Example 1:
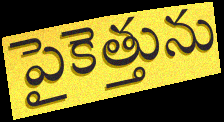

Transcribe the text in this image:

పైకెత్తును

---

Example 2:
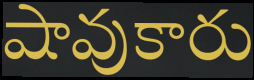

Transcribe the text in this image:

షావుకారు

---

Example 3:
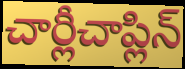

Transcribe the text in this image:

చార్లీచాప్లిన్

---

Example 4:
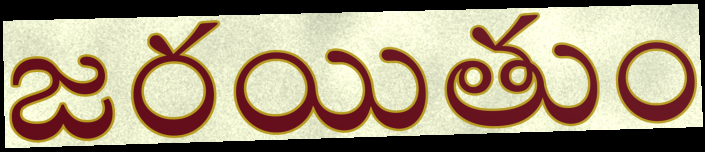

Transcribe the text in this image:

జరయితుం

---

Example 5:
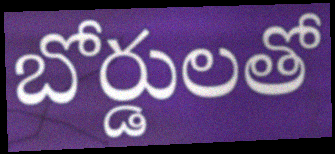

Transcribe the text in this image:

బోర్డులతో